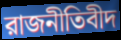
রাজনীতিবীদ